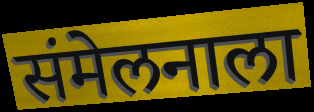
संमेलनाला